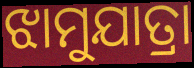
ଝାମୁଯାତ୍ରା